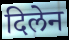
दिलेन